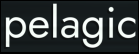
pelagic